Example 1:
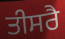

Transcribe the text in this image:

ਤੀਸਰੈ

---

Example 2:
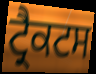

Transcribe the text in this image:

ਟ੍ਰੈਕਟਸ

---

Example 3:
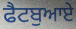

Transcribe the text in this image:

ਫੈਟਬੁਆਏ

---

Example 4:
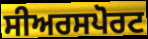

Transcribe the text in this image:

ਸੀਅਰਸਪੋਰਟ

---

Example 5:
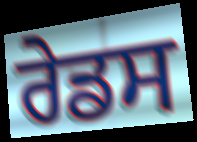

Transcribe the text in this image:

ਰੇਡਸ